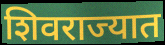
शिवराज्यात